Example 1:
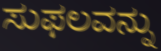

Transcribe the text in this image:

ಸುಫಲವನ್ನು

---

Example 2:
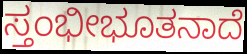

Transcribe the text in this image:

ಸ್ತಂಭೀಭೂತನಾದೆ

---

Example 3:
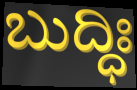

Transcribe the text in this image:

ಬುದ್ಧಿಃ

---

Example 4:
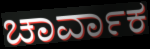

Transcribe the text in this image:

ಚಾರ್ವಾಕ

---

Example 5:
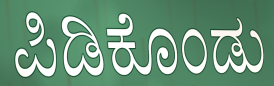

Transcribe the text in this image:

ಪಿಡಿಕೊಂಡು